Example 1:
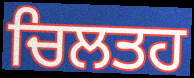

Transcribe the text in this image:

ਚਿਲਤਹ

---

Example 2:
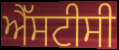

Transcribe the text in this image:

ਐੱਸਟੀਸੀ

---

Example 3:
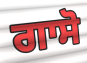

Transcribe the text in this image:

ਗਾਸੋ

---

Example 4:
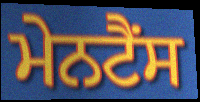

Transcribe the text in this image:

ਮੇਨਟੈਂਸ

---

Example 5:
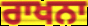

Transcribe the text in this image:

ਰਾਖਨਾ